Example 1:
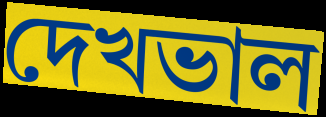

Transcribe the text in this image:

দেখভাল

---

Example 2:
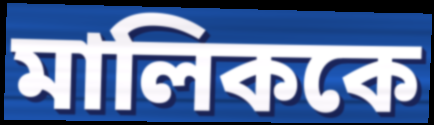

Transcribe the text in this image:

মালিককে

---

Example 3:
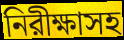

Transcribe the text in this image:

নিরীক্ষাসহ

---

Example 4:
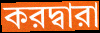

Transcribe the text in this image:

করদ্বারা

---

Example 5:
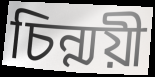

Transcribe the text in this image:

চিন্ময়ী